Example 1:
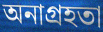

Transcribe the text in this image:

অনাগ্রহতা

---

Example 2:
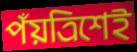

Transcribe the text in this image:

পঁয়ত্রিশেই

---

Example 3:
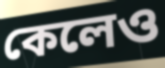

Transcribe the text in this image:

কেলেও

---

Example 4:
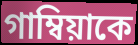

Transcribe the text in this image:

গাম্বিয়াকে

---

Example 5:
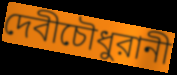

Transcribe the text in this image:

দেবীচৌধুরানী